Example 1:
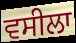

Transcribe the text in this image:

ਵਸੀਲਾ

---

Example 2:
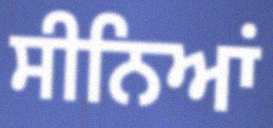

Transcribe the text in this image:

ਸੀਨਿਆਂ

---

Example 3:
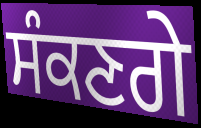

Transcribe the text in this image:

ਸੰਕਣਗੇ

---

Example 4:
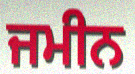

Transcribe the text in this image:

ਜਮੀਨ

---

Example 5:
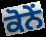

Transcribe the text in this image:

ਕੋਨੇਂ